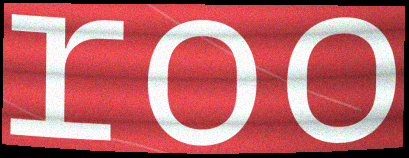
roo